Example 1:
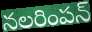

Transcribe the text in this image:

నలరింపన్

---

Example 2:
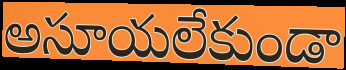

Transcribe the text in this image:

అసూయలేకుండా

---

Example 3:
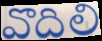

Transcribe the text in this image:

వొదిలి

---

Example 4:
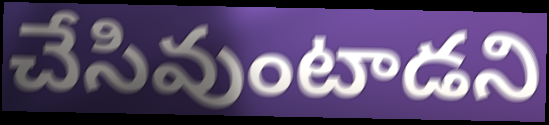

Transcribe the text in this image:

చేసివుంటాడని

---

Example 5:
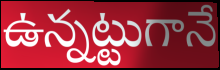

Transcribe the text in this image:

ఉన్నట్టుగానే